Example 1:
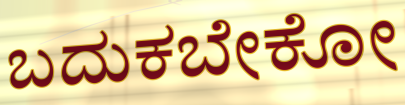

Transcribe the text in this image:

ಬದುಕಬೇಕೋ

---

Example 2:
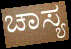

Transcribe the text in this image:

ಚಾಸ್ಯ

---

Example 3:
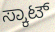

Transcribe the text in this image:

ಸ್ಕಾಟ್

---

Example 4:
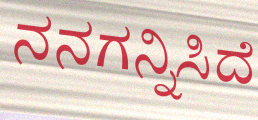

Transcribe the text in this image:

ನನಗನ್ನಿಸಿದೆ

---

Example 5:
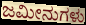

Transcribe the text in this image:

ಜಮೀನುಗಳು